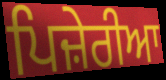
ਪਿਜ਼ੇਰੀਆ